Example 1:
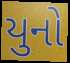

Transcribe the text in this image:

યુનો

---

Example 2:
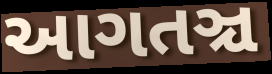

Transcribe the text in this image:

આગતઞ્ચ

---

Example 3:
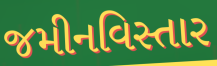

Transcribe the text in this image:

જમીનવિસ્તાર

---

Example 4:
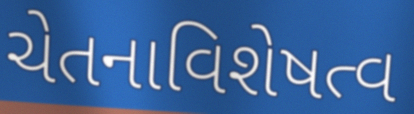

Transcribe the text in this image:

ચેતનાવિશેષત્વ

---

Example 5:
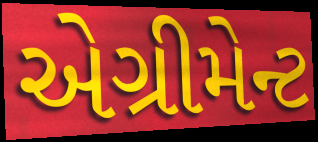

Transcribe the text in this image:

એગ્રીમેન્ટ